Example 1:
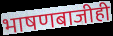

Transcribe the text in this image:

भाषणबाजीही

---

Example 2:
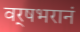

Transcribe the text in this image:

वर्षभरानं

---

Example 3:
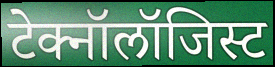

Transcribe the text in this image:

टेक्नॉलॉजिस्ट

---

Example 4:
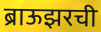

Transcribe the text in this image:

ब्राऊझरची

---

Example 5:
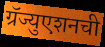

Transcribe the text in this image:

ग्रॅज्युएशनची